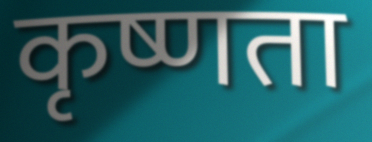
कृष्णता